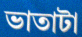
ভাতাটা